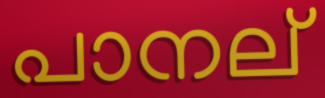
പാനല്